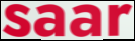
saar